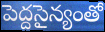
పెద్దసైన్యంతో